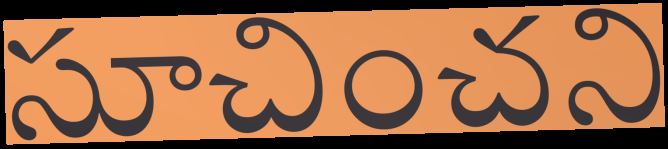
సూచించని